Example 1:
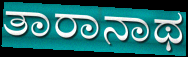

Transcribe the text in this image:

ತಾರಾನಾಥ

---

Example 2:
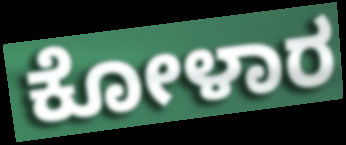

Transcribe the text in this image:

ಕೋಳಾರ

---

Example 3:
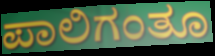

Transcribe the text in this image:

ಪಾಲಿಗಂತೂ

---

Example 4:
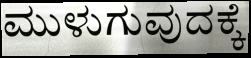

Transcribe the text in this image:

ಮುಳುಗುವುದಕ್ಕೆ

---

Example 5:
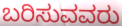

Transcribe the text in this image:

ಬರಿಸುವವರು